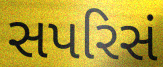
સપરિસં